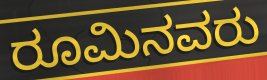
ರೂಮಿನವರು